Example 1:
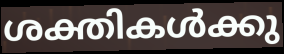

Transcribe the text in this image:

ശക്തികൾക്കു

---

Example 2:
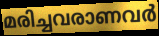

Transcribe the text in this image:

മരിച്ചവരാണവർ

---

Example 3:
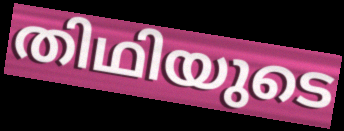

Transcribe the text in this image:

തിഥിയുടെ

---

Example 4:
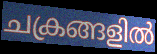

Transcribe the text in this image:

ചക്രങ്ങളിൽ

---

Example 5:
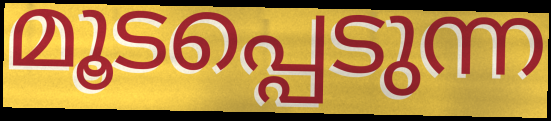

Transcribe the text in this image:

മൂടപ്പെടുന്ന